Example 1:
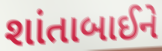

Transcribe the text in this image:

શાંતાબાઈને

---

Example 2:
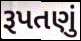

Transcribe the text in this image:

રૂપતણું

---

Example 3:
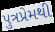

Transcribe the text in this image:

પુત્રપ્રેમથી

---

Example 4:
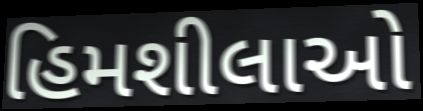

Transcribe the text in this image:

હિમશીલાઓ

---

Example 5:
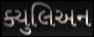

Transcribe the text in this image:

ક્યુલિઅન